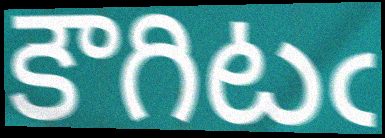
కౌగిటఁ